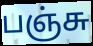
பஞ்சு